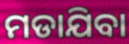
ମଡାଯିବା